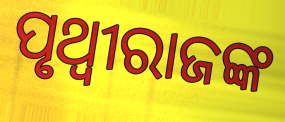
ପୃଥ୍ଵୀରାଜଙ୍କ